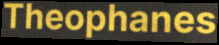
Theophanes